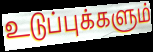
உடுப்புக்களும்